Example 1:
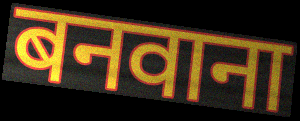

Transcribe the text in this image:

बनवाना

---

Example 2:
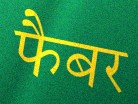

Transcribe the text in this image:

फैबर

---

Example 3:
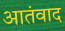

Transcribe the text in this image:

आतंवाद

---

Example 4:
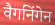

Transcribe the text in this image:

वैगनिंगेन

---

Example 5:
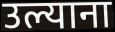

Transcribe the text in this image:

उल्याना